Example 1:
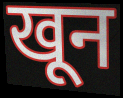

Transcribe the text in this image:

खून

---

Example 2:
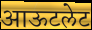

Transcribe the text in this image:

आऊटलेट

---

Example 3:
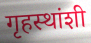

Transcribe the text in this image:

गृहस्थांशी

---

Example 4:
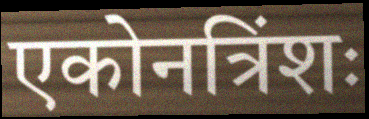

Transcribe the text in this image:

एकोनत्रिंशः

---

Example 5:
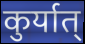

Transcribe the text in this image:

कुर्यात्